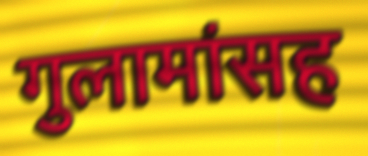
गुलामांसह